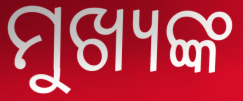
ମୁଖ୍ୟଙ୍କ